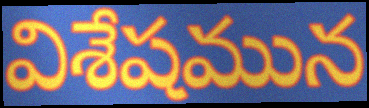
విశేషమున